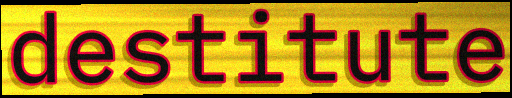
destitute